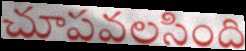
చూపవలసింది